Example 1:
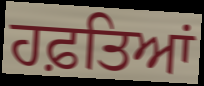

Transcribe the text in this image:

ਹਫ਼ਤਿਆਂ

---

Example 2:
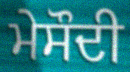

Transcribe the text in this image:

ਮੇਸੌਦੀ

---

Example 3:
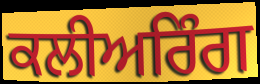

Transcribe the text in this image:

ਕਲੀਅਰਿੰਗ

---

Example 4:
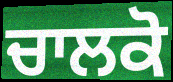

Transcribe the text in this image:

ਚਾਲਕੋ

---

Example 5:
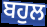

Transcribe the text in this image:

ਬਹੁਲ